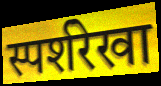
स्पर्शरेखा